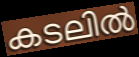
കടലിൽ